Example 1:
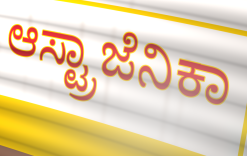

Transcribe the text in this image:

ಆಸ್ಟ್ರಾಜೆನಿಕಾ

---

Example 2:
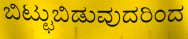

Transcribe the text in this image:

ಬಿಟ್ಟುಬಿಡುವುದರಿಂದ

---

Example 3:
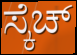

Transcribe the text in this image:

ಸ್ಕೆಚ್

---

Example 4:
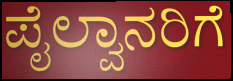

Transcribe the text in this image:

ಪೈಲ್ವಾನರಿಗೆ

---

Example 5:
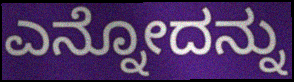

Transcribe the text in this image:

ಎನ್ನೋದನ್ನು